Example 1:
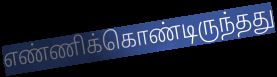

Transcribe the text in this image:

எண்ணிக்கொண்டிருந்தது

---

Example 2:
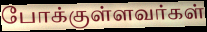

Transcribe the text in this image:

போக்குள்ளவர்கள்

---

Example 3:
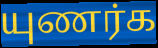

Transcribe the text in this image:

யுணர்க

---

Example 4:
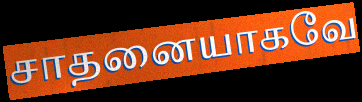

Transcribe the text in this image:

சாதனையாகவே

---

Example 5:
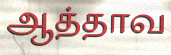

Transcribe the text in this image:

ஆத்தாவ